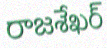
రాజశేఖర్